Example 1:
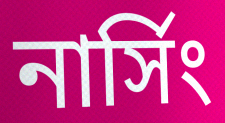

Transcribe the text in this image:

নার্সিং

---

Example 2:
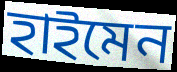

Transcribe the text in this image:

হাইমেন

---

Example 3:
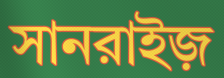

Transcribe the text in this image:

সানরাইজ়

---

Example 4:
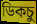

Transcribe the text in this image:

ডিকচু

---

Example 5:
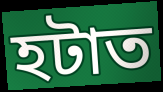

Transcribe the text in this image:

হটাত